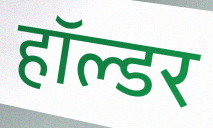
हॉल्डर